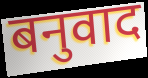
बनुवाद